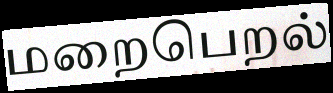
மறைபெறல்